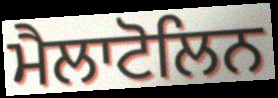
ਮੈਲਾਟੋਲਿਨ